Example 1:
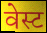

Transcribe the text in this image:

वेस्ट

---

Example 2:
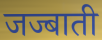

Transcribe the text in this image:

जज्बाती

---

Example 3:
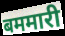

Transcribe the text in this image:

बममारी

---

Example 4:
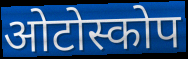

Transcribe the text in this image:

ओटोस्कोप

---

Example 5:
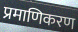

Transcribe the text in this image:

प्रमाणिकरण